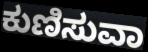
ಕುಣಿಸುವಾ